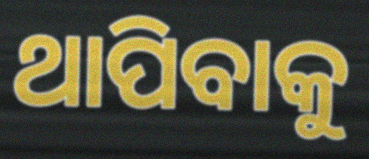
ଥାପିବାକୁ